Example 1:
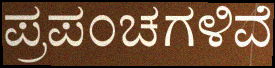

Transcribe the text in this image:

ಪ್ರಪಂಚಗಳಿವೆ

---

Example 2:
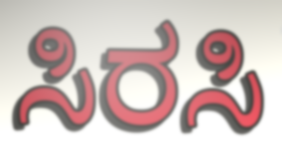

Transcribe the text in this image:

ಸಿರಸಿ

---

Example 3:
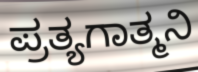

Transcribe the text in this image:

ಪ್ರತ್ಯಗಾತ್ಮನಿ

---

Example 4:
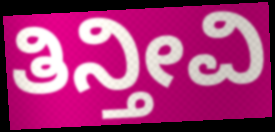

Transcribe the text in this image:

ತಿನ್ತೀವಿ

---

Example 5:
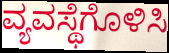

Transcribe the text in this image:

ವ್ಯವಸ್ಥೆಗೊಳಿಸಿ